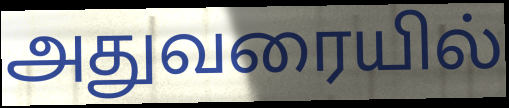
அதுவரையில்